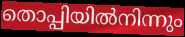
തൊപ്പിയിൽനിന്നും